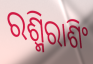
ରଶ୍ମିରାଶିଂ